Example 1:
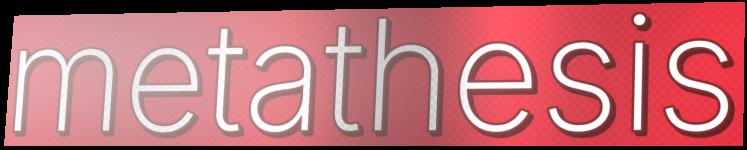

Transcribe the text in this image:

metathesis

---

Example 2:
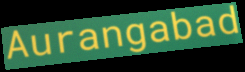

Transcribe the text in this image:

Aurangabad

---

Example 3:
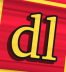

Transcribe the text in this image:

dl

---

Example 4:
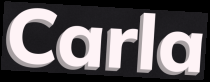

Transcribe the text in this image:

Carla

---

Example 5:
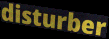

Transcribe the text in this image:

disturber